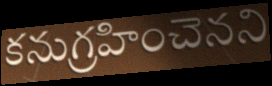
కనుగ్రహించెనని